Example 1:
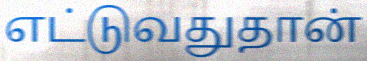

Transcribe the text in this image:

எட்டுவதுதான்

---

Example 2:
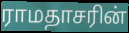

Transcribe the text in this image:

ராமதாசரின்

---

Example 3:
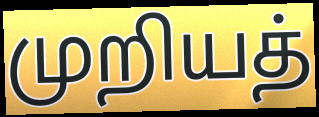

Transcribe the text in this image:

முறியத்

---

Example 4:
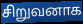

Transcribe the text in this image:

சிறுவனாக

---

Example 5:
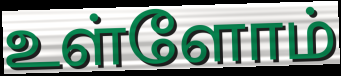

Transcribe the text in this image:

உள்ளோம்